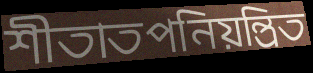
শীতাতপনিয়ন্ত্রিত